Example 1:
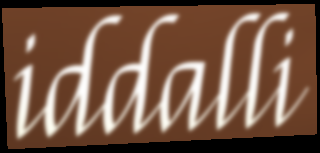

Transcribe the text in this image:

iddalli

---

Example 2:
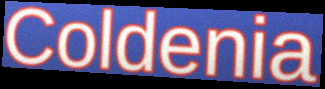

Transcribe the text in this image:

Coldenia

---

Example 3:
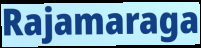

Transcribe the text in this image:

Rajamaraga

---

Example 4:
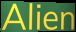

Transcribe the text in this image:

Alien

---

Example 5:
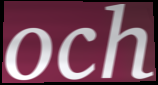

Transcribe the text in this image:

och